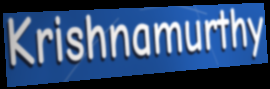
Krishnamurthy